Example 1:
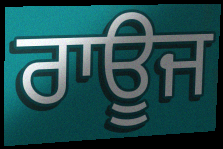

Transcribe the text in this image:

ਰਾਊਜ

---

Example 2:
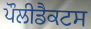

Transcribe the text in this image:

ਪੌਲੀਡੈਕਟਸ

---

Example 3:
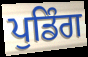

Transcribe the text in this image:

ਪੁਡਿੰਗ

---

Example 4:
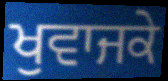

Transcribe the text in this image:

ਖੁਵਾਜਕੇ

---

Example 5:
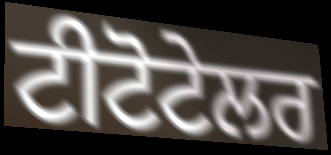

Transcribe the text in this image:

ਟੀਟੋਟੇਲਰ